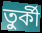
তুর্কী